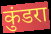
कुंडरा